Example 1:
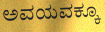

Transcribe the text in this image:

ಅವಯವಕ್ಕೂ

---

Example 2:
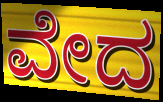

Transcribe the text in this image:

ವೇದ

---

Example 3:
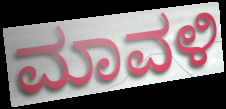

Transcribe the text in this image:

ಮಾವಳಿ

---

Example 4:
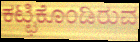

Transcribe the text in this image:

ಕಟ್ಟಿಕೊಂಡಿರುವ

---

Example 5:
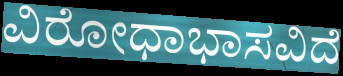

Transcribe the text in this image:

ವಿರೋಧಾಭಾಸವಿದೆ